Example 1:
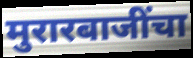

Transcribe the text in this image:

मुरारबाजींचा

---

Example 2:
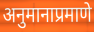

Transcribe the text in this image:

अनुमानाप्रमाणे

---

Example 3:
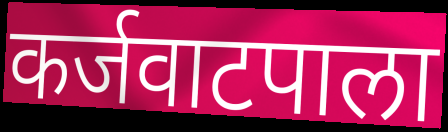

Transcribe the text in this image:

कर्जवाटपाला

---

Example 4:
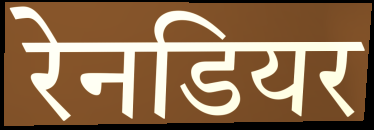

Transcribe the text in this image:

रेनडियर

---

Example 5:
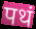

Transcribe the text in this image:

पथं